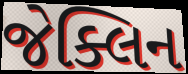
જેક્લિન